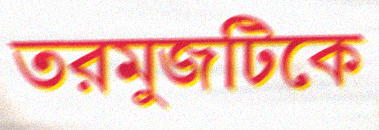
তরমুজটিকে